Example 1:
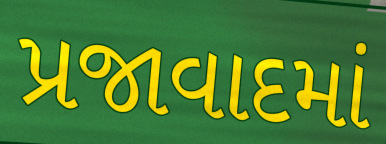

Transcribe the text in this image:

પ્રજાવાદમાં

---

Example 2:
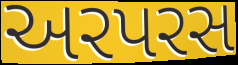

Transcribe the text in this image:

અરપરસ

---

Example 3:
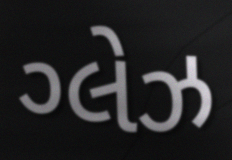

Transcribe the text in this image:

ગ્લેઝ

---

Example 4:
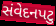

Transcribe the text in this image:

સંવેદનપટુ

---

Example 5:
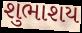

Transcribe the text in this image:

શુભાશય